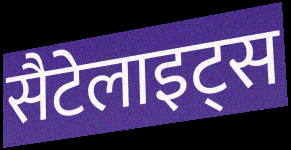
सैटेलाइट्स